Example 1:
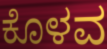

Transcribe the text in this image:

ಕೊಳವ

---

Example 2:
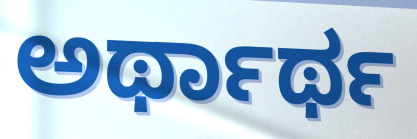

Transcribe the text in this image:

ಅರ್ಥಾರ್ಥ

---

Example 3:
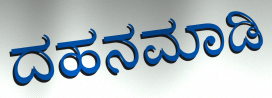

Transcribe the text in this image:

ದಹನಮಾಡಿ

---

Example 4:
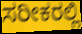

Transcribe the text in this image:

ಸರೀಕರಲ್ಲಿ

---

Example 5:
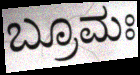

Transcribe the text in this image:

ಬ್ರೂಮಃ